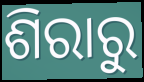
ଶିରାରୁ